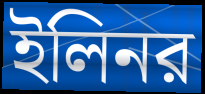
ইলিনর